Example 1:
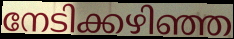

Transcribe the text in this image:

നേടിക്കഴിഞ്ഞ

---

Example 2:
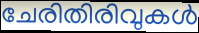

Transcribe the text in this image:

ചേരിതിരിവുകൾ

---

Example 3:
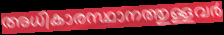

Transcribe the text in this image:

അധികാരസ്ഥാനത്തുള്ളവർ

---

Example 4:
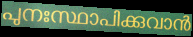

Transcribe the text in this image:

പുനഃസ്ഥാപിക്കുവാൻ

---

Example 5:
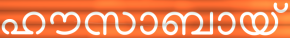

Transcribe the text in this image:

ഹൗസാബായ്